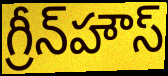
గ్రీన్‌హౌస్